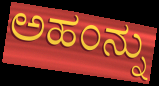
ಅಹಂನ್ನು